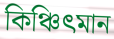
কিঞ্চিৎমান